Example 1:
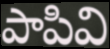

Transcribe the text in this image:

పాపివి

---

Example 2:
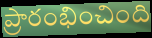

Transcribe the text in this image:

ప్రారంభించింది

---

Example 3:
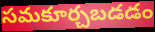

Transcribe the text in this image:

సమకూర్చబడడం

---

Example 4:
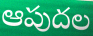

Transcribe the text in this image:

ఆపుదల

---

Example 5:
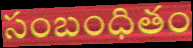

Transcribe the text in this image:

సంబంధితం